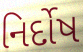
નિર્દોષ